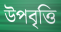
উপবৃত্তি